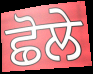
ਛੋਲੇ